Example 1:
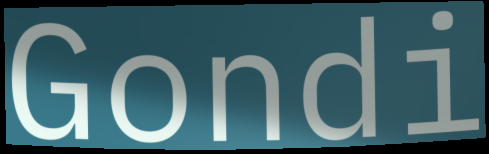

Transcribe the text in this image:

Gondi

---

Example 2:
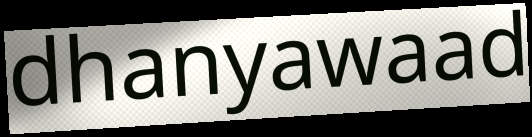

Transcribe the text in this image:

dhanyawaad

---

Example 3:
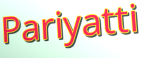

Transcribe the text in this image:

Pariyatti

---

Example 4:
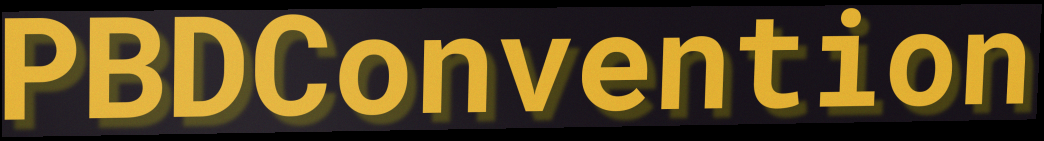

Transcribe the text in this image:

PBDConvention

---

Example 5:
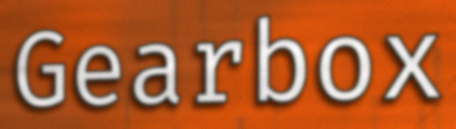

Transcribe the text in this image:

Gearbox